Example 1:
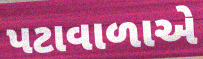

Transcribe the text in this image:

પટાવાળાએ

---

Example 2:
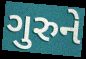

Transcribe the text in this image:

ગુરુને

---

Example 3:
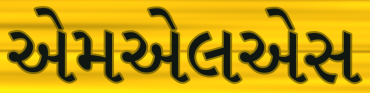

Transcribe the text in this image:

એમએલએસ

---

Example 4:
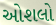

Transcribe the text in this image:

ઓશલો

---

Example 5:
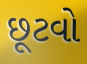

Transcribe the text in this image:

છૂટવો